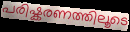
പരിഷ്കരണത്തിലൂടെ